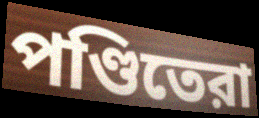
পণ্ডিতেরা